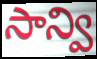
సాన్వి